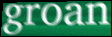
groan